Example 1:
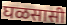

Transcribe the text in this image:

घळसासी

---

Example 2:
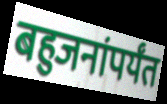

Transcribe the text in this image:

बहुजनांपर्यंत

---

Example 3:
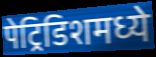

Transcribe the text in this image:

पेट्रिडिशमध्ये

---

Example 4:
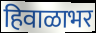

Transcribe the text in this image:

हिवाळाभर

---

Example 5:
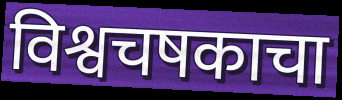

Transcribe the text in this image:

विश्वचषकाचा